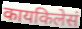
कायकिलेसं